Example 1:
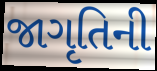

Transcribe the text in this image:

જાગૃતિની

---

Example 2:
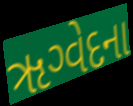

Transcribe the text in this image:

ૠગ્વેદના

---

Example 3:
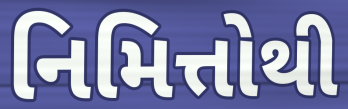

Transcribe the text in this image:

નિમિત્તોથી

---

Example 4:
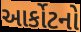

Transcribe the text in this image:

આર્કોટનો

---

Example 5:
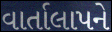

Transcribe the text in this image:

વાર્તાલાપને